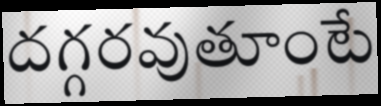
దగ్గరవుతూంటే